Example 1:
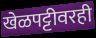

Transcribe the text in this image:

खेळपट्टीवरही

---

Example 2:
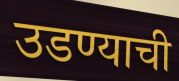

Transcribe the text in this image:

उडण्याची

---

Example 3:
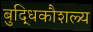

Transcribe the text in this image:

बुद्धिकौशल्य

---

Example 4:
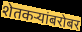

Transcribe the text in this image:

शेतकर्‍यांबरोबर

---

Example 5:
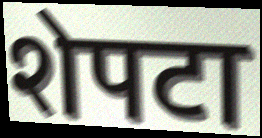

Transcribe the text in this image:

शेपटा